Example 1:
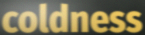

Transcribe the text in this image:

coldness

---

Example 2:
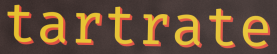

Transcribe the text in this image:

tartrate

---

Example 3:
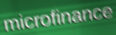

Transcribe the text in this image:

microfinance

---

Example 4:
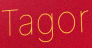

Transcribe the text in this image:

Tagor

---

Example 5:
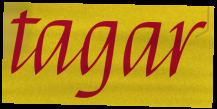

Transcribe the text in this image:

tagar